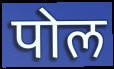
पोल